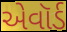
એવૉર્ડ